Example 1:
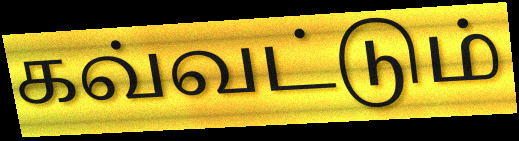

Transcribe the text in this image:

கவ்வட்டும்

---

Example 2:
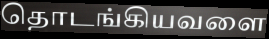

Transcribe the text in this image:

தொடங்கியவளை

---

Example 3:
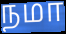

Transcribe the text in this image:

நமா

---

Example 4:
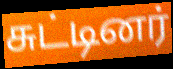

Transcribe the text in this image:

சுட்டினர்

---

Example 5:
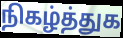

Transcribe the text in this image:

நிகழ்த்துக